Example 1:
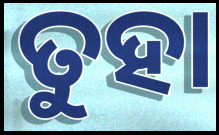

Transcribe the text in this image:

ତୁହା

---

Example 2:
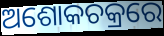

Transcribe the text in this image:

ଅଶୋକଚକ୍ରରେ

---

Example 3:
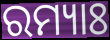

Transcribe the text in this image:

ରମ୍ୟାଃ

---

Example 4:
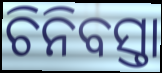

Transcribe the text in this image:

ଚିନିବସ୍ତା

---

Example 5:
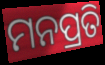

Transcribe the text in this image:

ମନପ୍ରତି